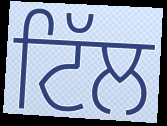
ਟਿੱਲ